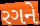
રગને